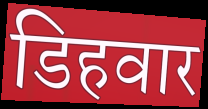
डिहवार